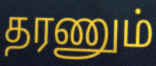
தரணும்